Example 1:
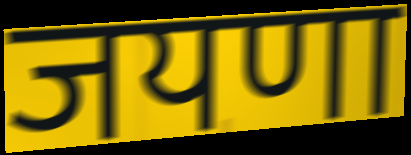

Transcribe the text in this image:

जयणा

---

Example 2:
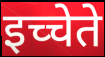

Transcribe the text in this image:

इच्चेते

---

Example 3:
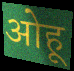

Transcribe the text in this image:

ओहू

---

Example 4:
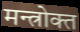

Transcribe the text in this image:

मन्त्रोक्त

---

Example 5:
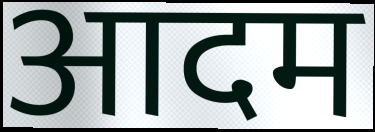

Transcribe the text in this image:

आदम